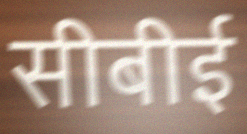
सीबीई